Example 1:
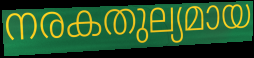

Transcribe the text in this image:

നരകതുല്യമായ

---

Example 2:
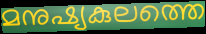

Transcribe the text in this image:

മനുഷ്യകുലത്തെ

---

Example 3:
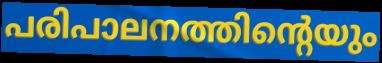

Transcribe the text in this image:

പരിപാലനത്തിന്റെയും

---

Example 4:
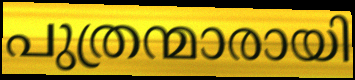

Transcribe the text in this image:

പുത്രന്മാരായി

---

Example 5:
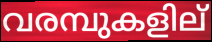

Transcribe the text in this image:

വരമ്പുകളില്